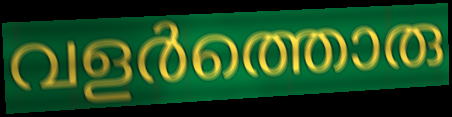
വളർത്തൊരു